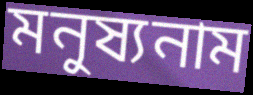
মনুষ্যনাম